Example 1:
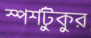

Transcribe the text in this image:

স্পর্শটুকুর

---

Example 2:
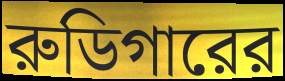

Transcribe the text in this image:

রুডিগারের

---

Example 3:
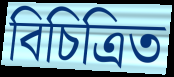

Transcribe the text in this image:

বিচিত্রিত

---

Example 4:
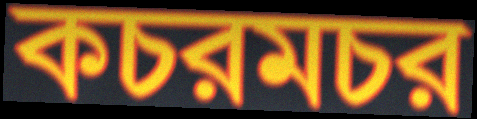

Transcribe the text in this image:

কচরমচর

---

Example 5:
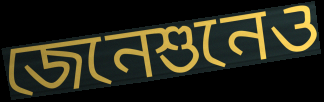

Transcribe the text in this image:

জেনেশুনেও